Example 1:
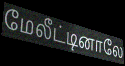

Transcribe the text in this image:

மேலீட்டினாலே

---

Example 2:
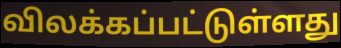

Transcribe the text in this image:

விலக்கப்பட்டுள்ளது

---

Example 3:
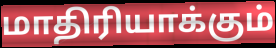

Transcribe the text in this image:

மாதிரியாக்கும்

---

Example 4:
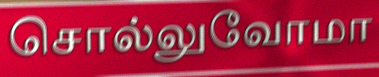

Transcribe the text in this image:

சொல்லுவோமா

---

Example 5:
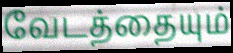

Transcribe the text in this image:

வேடத்தையும்